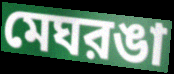
মেঘরঙা